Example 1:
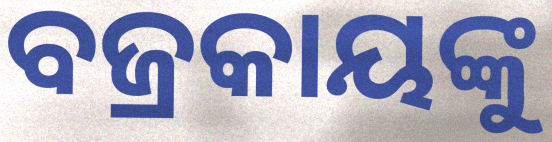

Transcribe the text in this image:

ବଜ୍ରକାୟଙ୍କୁ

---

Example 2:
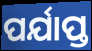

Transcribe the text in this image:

ପର୍ଯାପ୍ତ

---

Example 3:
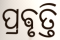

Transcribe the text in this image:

ପ୍ରଵୃତ୍ତି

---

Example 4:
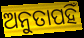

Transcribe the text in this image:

ଅନୁତାପହିଁ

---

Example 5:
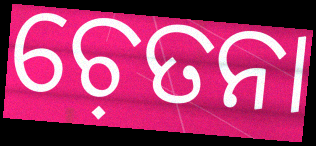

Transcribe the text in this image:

ଚ଼େତନା